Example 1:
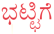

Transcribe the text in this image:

ಭಟ್ಟಿಗೆ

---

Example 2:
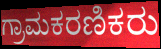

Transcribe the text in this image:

ಗ್ರಾಮಕರಣಿಕರು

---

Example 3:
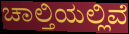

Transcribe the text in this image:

ಚಾಲ್ತಿಯಲ್ಲಿವೆ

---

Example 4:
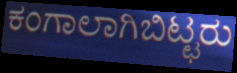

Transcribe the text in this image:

ಕಂಗಾಲಾಗಿಬಿಟ್ಟರು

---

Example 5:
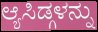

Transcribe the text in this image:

ಆ್ಯಸಿಡ್ಗಳನ್ನು